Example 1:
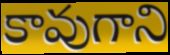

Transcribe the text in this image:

కావుగాని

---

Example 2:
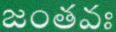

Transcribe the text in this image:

జంతవః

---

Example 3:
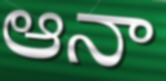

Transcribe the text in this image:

ఆనా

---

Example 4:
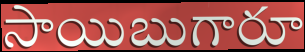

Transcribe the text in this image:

సాయిబుగారూ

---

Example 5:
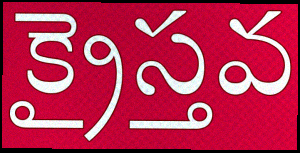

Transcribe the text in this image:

క్రైస్తవ